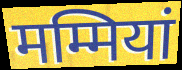
मम्मियां